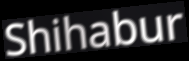
Shihabur